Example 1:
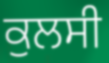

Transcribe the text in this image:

ਕੁਲਸੀ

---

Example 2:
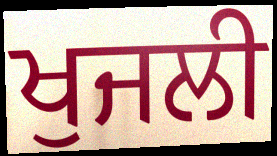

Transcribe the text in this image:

ਖੁਜਲੀ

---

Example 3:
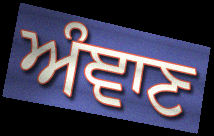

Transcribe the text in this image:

ਅੰਞਾਣ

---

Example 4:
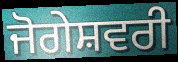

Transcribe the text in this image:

ਜੋਗੇਸ਼ਵਰੀ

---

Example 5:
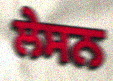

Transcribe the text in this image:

ਲੇਸਨ